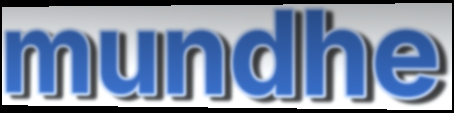
mundhe